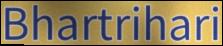
Bhartrihari